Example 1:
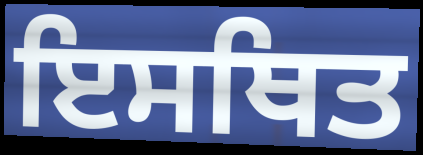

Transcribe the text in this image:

ਇਸਥਿਤ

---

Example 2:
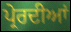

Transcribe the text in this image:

ਪ੍ਰੇਰਦੀਆਂ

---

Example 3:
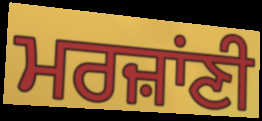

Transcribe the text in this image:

ਮਰਜ਼ਾਂਣੀ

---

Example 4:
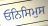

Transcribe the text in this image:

ਓਨਿਸਿਮੁਸ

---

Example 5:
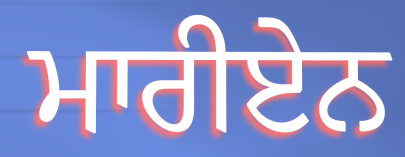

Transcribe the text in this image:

ਮਾਰੀਏਨ